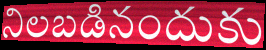
నిలబడినందుకు